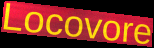
Locovore